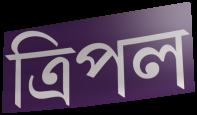
ত্রিপল